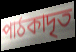
পাঠকাদৃত